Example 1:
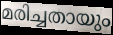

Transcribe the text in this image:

മരിച്ചതായും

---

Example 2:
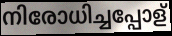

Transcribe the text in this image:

നിരോധിച്ചപ്പോള്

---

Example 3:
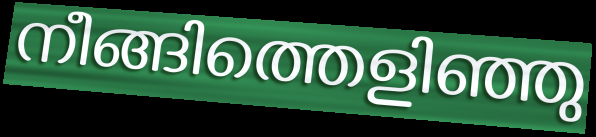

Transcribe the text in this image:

നീങ്ങിത്തെളിഞ്ഞു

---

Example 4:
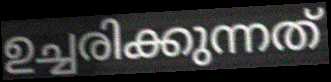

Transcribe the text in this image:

ഉച്ചരിക്കുന്നത്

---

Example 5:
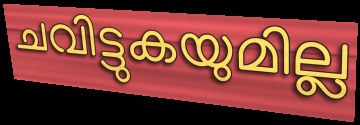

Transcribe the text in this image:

ചവിട്ടുകയുമില്ല